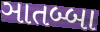
ઞાતબ્બા